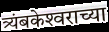
त्र्यंबकेश्‍वराच्या